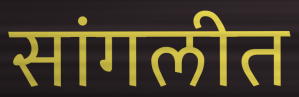
सांगलीत